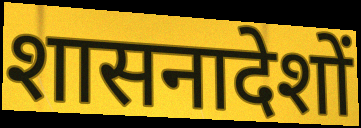
शासनादेशों